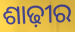
ଶାଢ଼ୀର